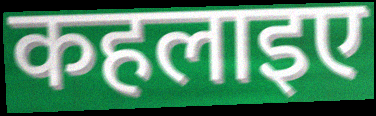
कहलाइए